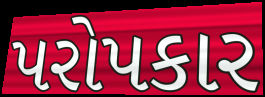
પરોપકાર